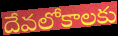
దేవలోకాలకు